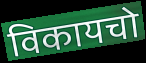
विकायचो